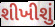
શીખીશું